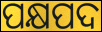
ପକ୍ଷପଦ